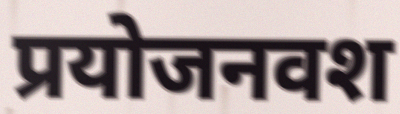
प्रयोजनवश